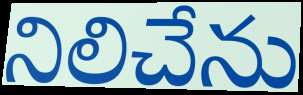
నిలిచేను